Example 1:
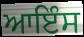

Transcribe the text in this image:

ਆਇੰਸ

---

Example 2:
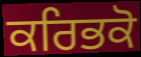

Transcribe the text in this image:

ਕਰਿਭਕੋ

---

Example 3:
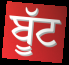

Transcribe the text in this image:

ਬੂੱਟ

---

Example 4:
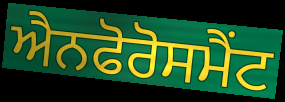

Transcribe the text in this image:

ਐਨਫੋਰੋਸਮੈਂਟ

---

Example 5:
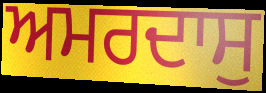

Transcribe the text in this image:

ਅਮਰਦਾਸੁ